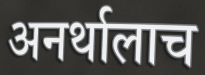
अनर्थालाच